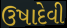
ઉષાદેવી